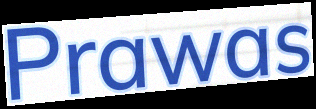
Prawas